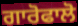
ਗਾਰੋਫਾਲੋ